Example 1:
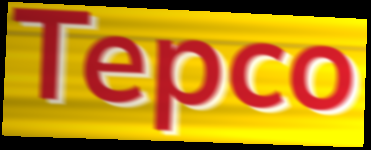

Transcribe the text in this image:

Tepco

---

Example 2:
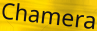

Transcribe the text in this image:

Chamera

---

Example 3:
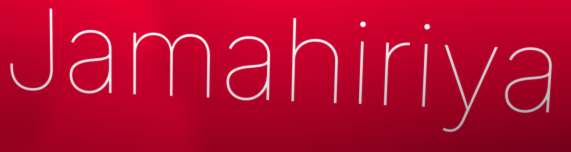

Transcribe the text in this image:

Jamahiriya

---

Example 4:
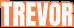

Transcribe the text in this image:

TREVOR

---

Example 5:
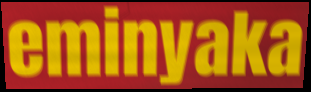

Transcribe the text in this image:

eminyaka